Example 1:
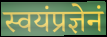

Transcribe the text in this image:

स्वयंप्रज्ञेनं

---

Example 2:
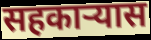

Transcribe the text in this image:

सहकार्‍यास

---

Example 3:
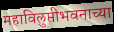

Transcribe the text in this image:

महाविलुप्तीभवनाच्या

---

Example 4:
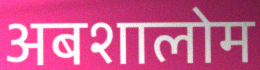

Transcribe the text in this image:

अबशालोम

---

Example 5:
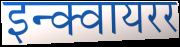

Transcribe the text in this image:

इन्क्वायरर